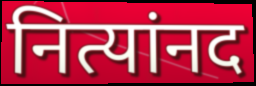
नित्यांनद